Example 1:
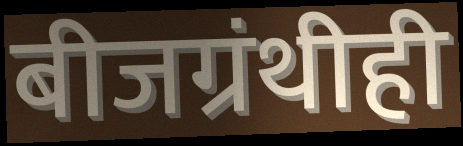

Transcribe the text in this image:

बीजग्रंथीही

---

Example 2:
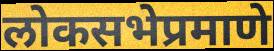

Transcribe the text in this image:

लोकसभेप्रमाणे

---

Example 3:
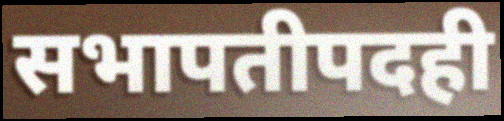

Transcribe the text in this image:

सभापतीपदही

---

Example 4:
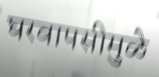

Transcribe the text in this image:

घरवापसीमुळे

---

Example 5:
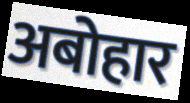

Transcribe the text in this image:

अबोहार